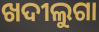
ଖଦୀଲୁଗା